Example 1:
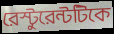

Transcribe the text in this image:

রেস্টুরেন্টটিকে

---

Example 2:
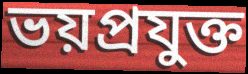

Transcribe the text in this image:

ভয়প্রযুক্ত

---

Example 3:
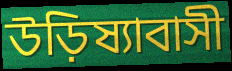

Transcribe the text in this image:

উড়িষ্যাবাসী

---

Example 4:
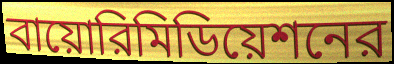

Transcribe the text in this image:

বায়োরিমিডিয়েশনের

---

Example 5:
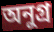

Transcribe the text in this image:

অনুগ্র